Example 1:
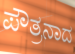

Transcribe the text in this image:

ಪೌತ್ರನಾದ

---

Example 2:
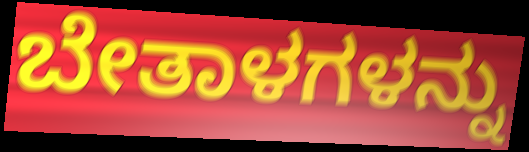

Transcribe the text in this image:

ಬೇತಾಳಗಳನ್ನು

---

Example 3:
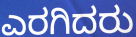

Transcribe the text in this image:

ಎರಗಿದರು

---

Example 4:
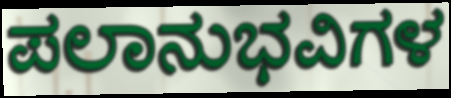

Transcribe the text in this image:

ಪಲಾನುಭವಿಗಳ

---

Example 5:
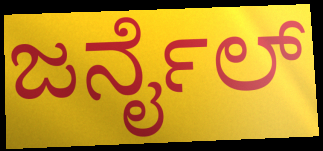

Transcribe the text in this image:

ಜರ್ನೈಲ್